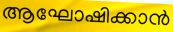
ആഘോഷിക്കാൻ